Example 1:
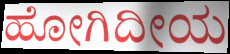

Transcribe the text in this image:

ಹೋಗಿದೀಯ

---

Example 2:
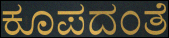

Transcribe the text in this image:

ಕೂಪದಂತೆ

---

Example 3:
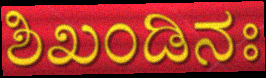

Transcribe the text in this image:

ಶಿಖಂಡಿನಃ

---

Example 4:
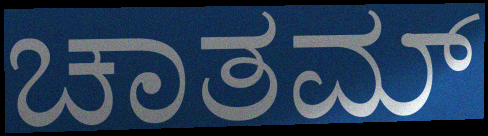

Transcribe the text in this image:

ಚಾತಮ್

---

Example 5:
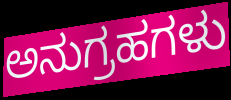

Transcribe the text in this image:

ಅನುಗ್ರಹಗಳು